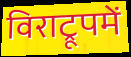
विराट्रूपमें